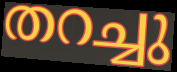
തറച്ചു